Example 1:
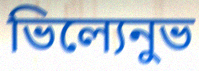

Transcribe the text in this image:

ভিল্যেনুভ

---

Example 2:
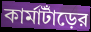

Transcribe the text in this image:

কার্মাটাঁড়ের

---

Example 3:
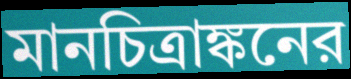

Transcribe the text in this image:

মানচিত্রাঙ্কনের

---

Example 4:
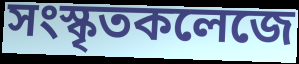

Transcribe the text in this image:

সংস্কৃতকলেজে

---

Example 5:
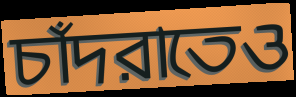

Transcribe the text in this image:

চাঁদরাতেও